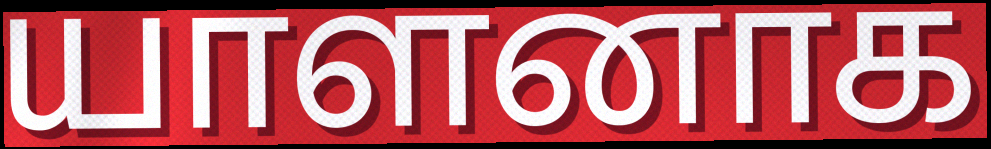
யாளனாக